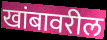
खांबावरील